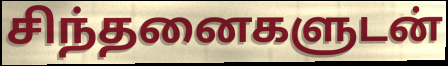
சிந்தனைகளுடன்